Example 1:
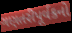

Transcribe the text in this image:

ગણતરીપૂર્વકનો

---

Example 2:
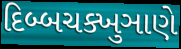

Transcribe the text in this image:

દિબ્બચક્ખુઞાણે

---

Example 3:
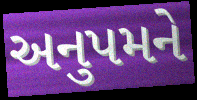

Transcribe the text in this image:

અનુપમને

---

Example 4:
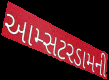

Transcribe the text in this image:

આમ્સટરડામની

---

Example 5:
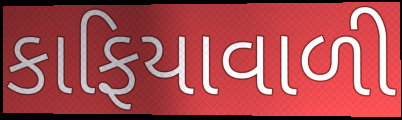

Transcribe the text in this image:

કાફિયાવાળી